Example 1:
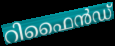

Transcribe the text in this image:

റിഫൈൻഡ്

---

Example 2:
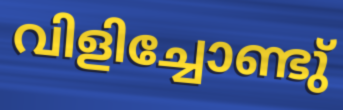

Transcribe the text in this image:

വിളിച്ചോണ്ടു്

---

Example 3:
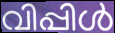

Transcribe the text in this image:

വിപ്പിൾ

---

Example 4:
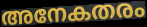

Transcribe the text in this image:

അനേകതരം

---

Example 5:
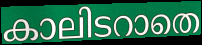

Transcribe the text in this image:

കാലിടറാതെ